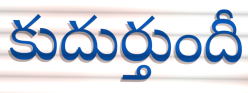
కుదుర్తుందీ